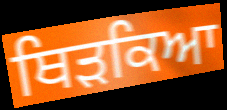
ਥਿੜਕਿਆ